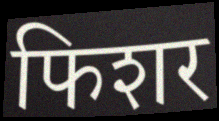
फिशर